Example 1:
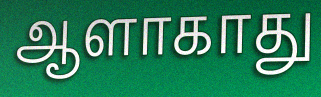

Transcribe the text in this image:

ஆளாகாது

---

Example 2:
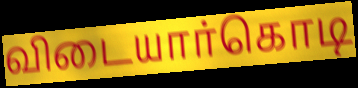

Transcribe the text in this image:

விடையார்கொடி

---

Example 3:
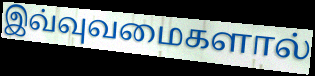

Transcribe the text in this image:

இவ்வுவமைகளால்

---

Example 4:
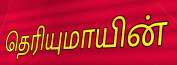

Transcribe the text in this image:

தெரியுமாயின்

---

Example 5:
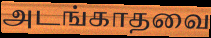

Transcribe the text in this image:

அடங்காதவை